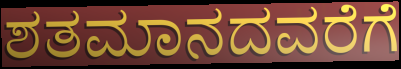
ಶತಮಾನದವರೆಗೆ